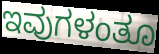
ಇವುಗಳಂತೂ